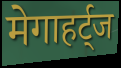
मेगाहर्ट्ज